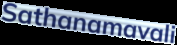
Sathanamavali